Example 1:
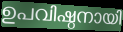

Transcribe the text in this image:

ഉപവിഷ്ഠനായി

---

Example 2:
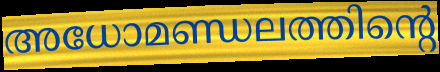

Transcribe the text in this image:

അധോമണ്ഡലത്തിന്റെ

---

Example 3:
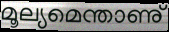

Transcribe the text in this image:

മൂല്യമെന്താണു്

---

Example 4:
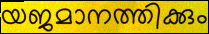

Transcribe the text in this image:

യജമാനത്തിക്കും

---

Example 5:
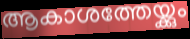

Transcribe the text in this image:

ആകാശത്തേയ്ക്കും